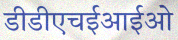
डीडीएचईआईओ